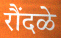
रौंदळे